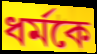
ধর্মকে